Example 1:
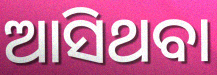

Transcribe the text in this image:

ଆସିଥବା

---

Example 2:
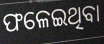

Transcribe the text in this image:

ଫଳେଇଥିବା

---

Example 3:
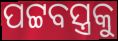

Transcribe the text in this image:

ପଟ୍ଟବସ୍ତ୍ରକୁ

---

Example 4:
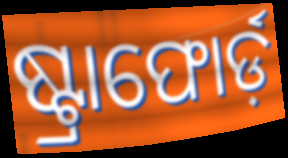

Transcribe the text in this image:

ଷ୍ଟ୍ରାଫୋର୍ଡ଼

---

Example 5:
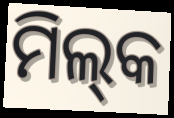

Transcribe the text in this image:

ମିଲ୍‌କ